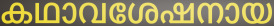
കഥാവശേഷനായ